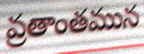
వ్రతాంతమున